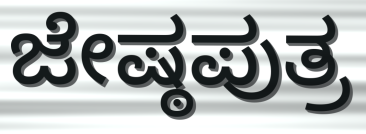
ಜೇಷ್ಠಪುತ್ರ